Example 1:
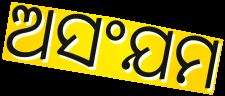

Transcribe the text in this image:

ଅସଂଯମ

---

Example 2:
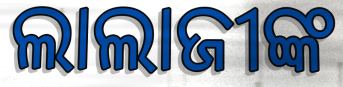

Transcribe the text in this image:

ଲାଲାଜୀଙ୍କ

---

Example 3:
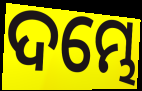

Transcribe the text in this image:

ଦମ୍ଭେ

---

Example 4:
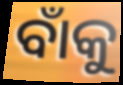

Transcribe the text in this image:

ବାଁକୁ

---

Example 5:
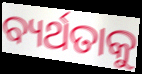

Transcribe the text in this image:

ବ୍ୟର୍ଥତାକୁ